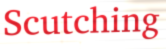
Scutching